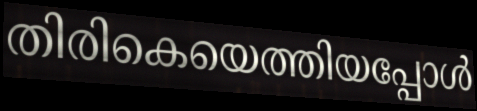
തിരികെയെത്തിയപ്പോൾ